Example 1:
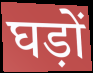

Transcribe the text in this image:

घड़ों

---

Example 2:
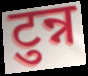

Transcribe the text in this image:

टुन्न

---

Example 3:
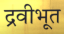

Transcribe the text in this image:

द्रवीभूत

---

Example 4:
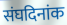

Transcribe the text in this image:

संघदिनांक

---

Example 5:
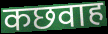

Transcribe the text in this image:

कछवाह